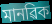
মানৱিক